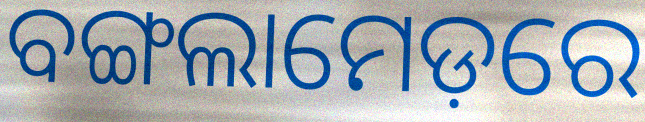
ବଙ୍ଗଲାମେଡ଼ରେ